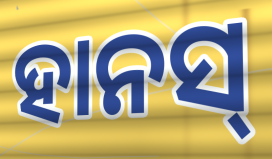
ହାନସ୍